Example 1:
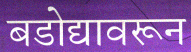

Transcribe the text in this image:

बडोद्यावरून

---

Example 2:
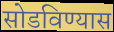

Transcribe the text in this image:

सोडविण्यास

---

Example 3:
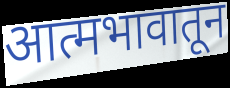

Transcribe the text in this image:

आत्मभावातून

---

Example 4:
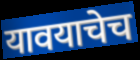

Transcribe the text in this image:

यावयाचेच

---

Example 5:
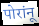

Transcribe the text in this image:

पोरांनू